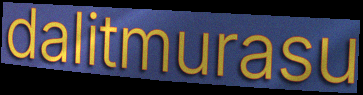
dalitmurasu